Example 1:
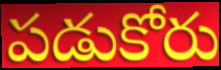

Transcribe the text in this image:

పడుకోరు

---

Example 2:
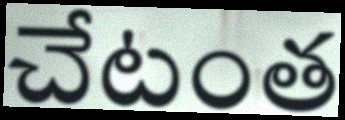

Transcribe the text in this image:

చేటంత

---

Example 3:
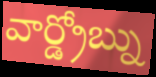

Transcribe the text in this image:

వార్డ్రోబ్ను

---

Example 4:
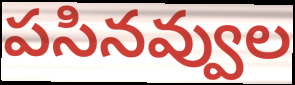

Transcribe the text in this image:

పసినవ్వుల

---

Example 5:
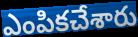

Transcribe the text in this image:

ఎంపికచేశారు